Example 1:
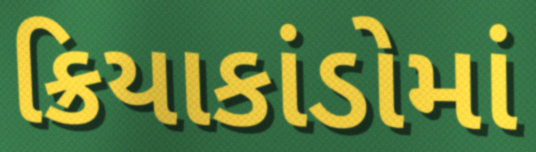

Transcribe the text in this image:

ક્રિયાકાંડોમાં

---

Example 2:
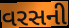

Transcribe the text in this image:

વરસની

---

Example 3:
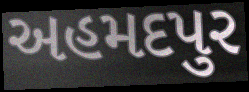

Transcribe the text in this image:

અહમદપુર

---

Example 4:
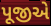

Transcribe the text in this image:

પૂજીએ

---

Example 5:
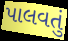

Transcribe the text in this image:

પાલવતું